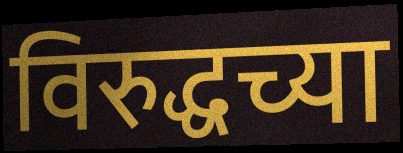
विरुद्धच्या